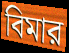
বিমার